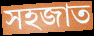
সহজাত